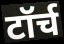
टॉर्च